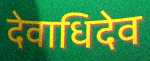
देवाधिदेव